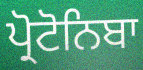
ਪ੍ਰੋਟੋਨਿਬਾ